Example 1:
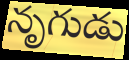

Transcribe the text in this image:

నృగుడు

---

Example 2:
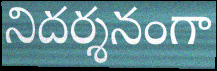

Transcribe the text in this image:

నిదర్శనంగా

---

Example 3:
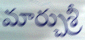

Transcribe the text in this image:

మార్చుశ్రీ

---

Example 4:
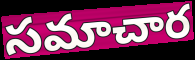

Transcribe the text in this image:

సమాచార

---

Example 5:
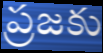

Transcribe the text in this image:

ప్రజకు